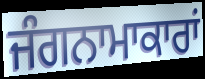
ਜੰਗਨਾਮਾਕਾਰਾਂ